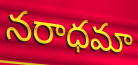
నరాధమా